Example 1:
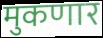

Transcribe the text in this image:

मुकणार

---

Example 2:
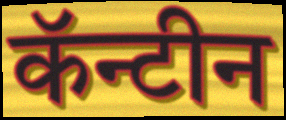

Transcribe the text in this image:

कॅन्टीन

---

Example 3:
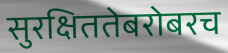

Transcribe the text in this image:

सुरक्षिततेबरोबरच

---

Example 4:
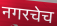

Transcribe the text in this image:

नगरचेच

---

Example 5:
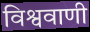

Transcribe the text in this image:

विश्ववाणी